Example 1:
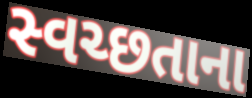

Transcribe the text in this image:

સ્વચ્છતાના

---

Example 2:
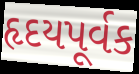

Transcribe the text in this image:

હૃદયપૂર્વક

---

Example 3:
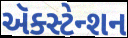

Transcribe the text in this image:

ઍક્સ્ટેન્શન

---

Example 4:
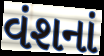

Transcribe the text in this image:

વંશનાં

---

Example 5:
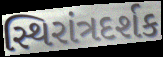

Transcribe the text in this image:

સ્થિરાંત્રદર્શક